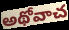
అథోవాచ